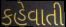
કહેવાતી